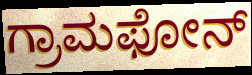
ಗ್ರಾಮಫೋನ್